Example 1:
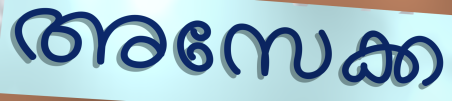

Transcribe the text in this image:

അസേക്ക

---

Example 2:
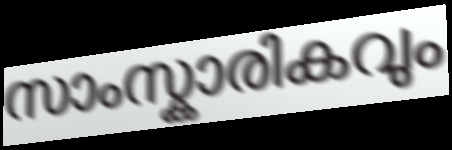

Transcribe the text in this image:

സാംസ്കാരികവും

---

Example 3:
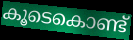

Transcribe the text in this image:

കൂടെകൊണ്ട്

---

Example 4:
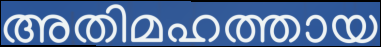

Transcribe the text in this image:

അതിമഹത്തായ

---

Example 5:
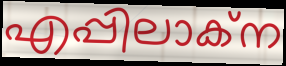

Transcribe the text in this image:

എപ്പിലാക്ന